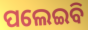
ପଲେଇବି